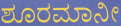
ಶೂರಮಾನೀ